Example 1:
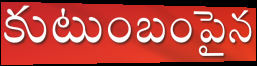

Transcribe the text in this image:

కుటుంబంపైన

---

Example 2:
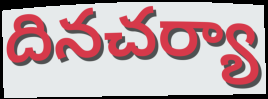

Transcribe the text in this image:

దినచర్యా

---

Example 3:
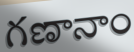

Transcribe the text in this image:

గణానాం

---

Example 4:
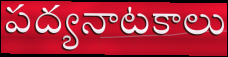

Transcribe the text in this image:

పద్యనాటకాలు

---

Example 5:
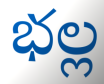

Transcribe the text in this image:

భల్ల